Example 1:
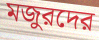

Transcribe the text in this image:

মজুরদের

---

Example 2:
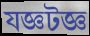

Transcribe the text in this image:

যজ্ঞটজ্ঞ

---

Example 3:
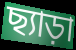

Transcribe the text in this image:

ছ্যাড়া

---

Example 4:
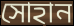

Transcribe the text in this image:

সোহান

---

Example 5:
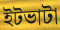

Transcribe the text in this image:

ইটভাটা